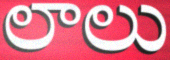
లాలు